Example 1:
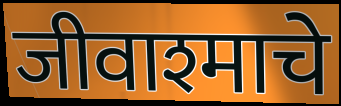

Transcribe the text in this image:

जीवाश्माचे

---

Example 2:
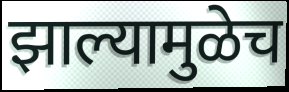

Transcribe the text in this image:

झाल्यामुळेच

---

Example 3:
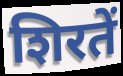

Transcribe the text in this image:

शिरतें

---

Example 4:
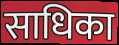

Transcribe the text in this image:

साधिका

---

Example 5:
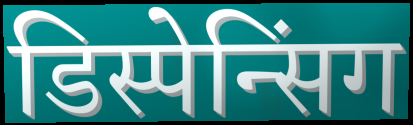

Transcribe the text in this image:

डिस्पेन्सिंग